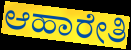
ಆಹಾರೇತಿ